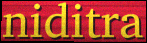
niditra